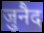
जुनैद